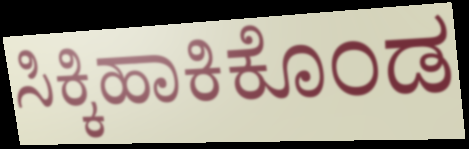
ಸಿಕ್ಕಿಹಾಕಿಕೊಂಡ